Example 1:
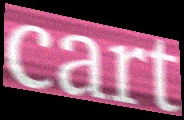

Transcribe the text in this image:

cart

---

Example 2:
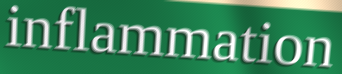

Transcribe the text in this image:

inflammation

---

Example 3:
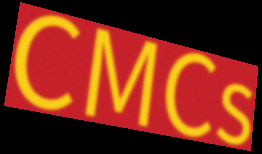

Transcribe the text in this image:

CMCs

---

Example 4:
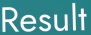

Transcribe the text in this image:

Result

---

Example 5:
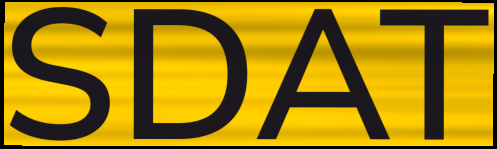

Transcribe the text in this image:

SDAT